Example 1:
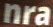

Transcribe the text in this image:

nra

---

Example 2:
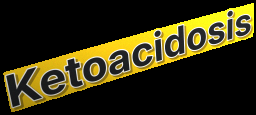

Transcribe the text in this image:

Ketoacidosis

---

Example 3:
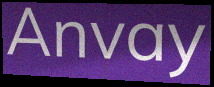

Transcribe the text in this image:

Anvay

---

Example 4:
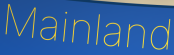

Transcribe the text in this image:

Mainland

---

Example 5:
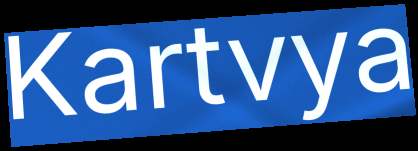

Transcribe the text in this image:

Kartvya